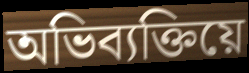
অভিব্যক্তিয়ে